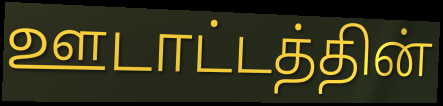
ஊடாட்டத்தின்